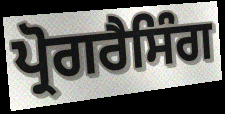
ਪ੍ਰੋਗਰੈਸਿੰਗ